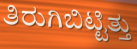
ತಿರುಗಿಬಿಟ್ಟಿತ್ತು